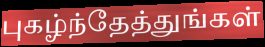
புகழ்ந்தேத்துங்கள்